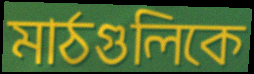
মাঠগুলিকে